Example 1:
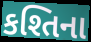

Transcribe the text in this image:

કશ્તિના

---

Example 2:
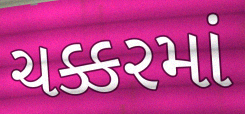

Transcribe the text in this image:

ચક્કરમાં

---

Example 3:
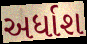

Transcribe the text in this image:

અર્ધાશ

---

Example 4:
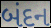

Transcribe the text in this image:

બંદન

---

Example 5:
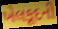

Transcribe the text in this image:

ખેલકૂદની